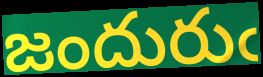
జందురుఁ